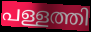
പള്ളത്തി